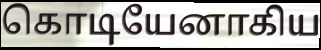
கொடியேனாகிய